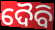
ଦୈବି